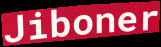
Jiboner